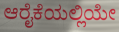
ಆರೈಕೆಯಲ್ಲಿಯೇ